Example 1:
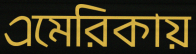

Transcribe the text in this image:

এমেরিকায়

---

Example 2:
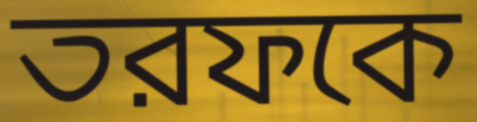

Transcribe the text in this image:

তরফকে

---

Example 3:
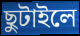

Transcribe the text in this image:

ছুটাইলে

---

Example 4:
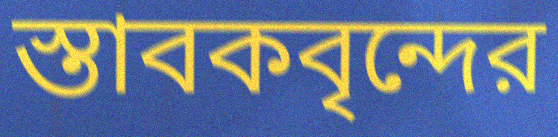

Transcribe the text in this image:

স্তাবকবৃন্দের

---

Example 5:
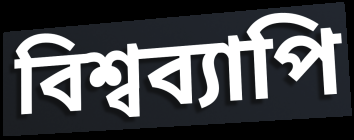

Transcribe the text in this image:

বিশ্বব্যাপি